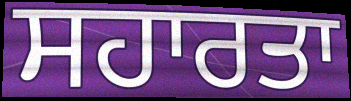
ਸਹਾਰਤਾ